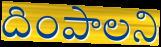
దింపాలని